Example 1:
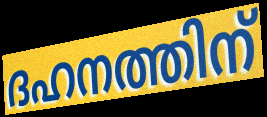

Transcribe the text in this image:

ദഹനത്തിന്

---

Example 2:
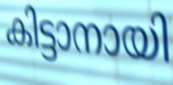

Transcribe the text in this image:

കിട്ടാനായി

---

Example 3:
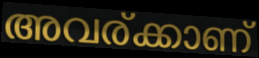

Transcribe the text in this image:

അവര്ക്കാണ്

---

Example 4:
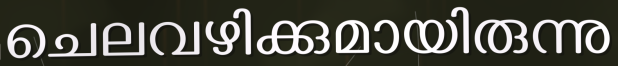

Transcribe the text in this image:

ചെലവഴിക്കുമായിരുന്നു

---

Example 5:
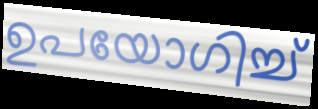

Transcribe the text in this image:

ഉപയോഗിച്ച്